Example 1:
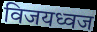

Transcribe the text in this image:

विजयध्वज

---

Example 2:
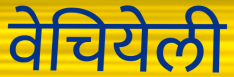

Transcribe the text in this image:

वेचियेली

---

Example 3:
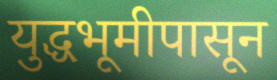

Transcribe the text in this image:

युद्धभूमीपासून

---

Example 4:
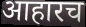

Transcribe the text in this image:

आहारच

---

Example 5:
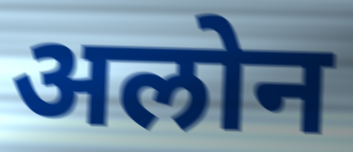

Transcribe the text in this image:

अलोन